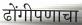
ढोंगीपणाचा